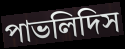
পাভলিদিস